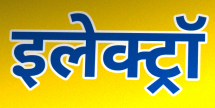
इलेक्ट्रॉ